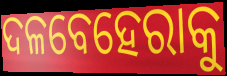
ଦଳବେହେରାକୁ